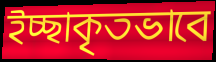
ইচ্ছাকৃতভাবে